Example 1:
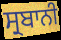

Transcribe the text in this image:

ਸ੍ਰਬਾਨੀ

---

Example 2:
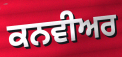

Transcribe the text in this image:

ਕਨਵੀਅਰ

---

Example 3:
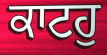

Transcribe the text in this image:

ਕਾਟਹੁ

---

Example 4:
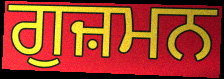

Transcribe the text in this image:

ਗੁਜ਼ਮਨ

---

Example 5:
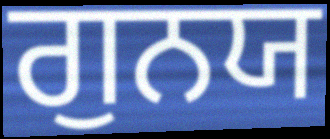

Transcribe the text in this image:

ਗੁਨਯ